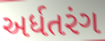
અર્ધતરંગ